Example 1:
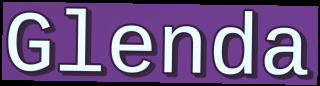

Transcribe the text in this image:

Glenda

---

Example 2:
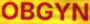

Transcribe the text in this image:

OBGYN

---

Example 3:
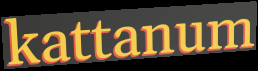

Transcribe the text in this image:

kattanum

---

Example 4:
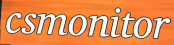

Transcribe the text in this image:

csmonitor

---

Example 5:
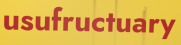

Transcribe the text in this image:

usufructuary